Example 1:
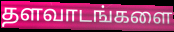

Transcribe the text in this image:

தளவாடங்களை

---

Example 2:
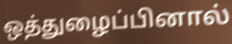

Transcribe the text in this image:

ஒத்துழைப்பினால்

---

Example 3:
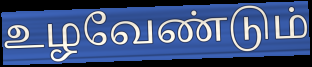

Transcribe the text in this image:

உழவேண்டும்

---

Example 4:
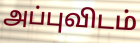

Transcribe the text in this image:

அப்புவிடம்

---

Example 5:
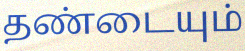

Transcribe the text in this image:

தண்டையும்